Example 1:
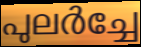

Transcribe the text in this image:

പുലർച്ചേ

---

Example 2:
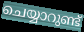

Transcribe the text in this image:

ചെയ്യാറുണ്ട്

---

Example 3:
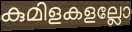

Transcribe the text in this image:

കുമിളകളല്ലോ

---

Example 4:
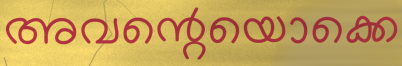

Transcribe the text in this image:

അവന്റെയൊക്കെ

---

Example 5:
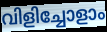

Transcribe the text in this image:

വിളിച്ചോളാം